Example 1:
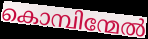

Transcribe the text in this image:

കൊമ്പിന്മേൽ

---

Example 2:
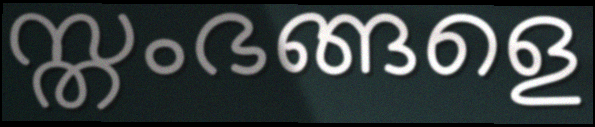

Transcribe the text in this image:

സ്തംഭങ്ങളെ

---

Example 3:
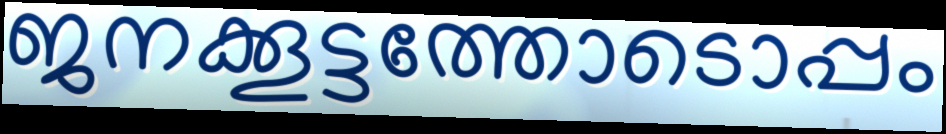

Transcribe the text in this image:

ജനക്കൂട്ടത്തോടൊപ്പം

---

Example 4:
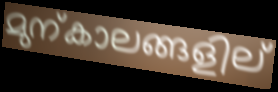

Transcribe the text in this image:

മുന്കാലങ്ങളില്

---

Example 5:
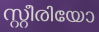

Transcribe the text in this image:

സ്റ്റീരിയോ